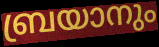
ബ്രയാനും